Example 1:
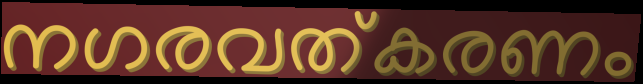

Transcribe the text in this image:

നഗരവത്കരണം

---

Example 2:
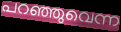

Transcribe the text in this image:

പറഞ്ഞുവെന്ന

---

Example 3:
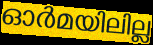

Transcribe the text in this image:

ഓർമയിലില്ല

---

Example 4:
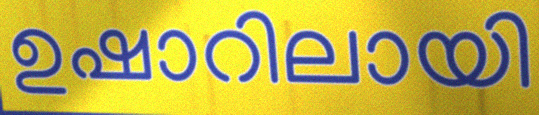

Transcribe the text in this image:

ഉഷാറിലായി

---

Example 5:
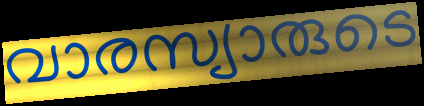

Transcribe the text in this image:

വാരസ്യാരുടെ